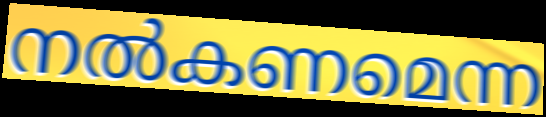
നൽകണമെന്ന